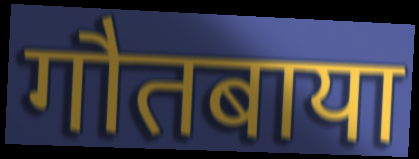
गौतबाया